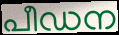
പീഡന